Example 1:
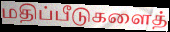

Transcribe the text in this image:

மதிப்பீடுகளைத்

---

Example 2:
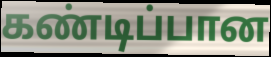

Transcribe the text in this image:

கண்டிப்பான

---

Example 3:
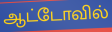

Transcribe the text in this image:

ஆட்டோவில்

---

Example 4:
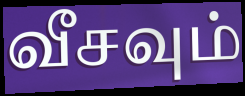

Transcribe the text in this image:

வீசவும்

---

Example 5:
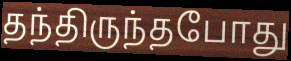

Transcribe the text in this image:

தந்திருந்தபோது